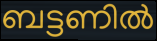
ബട്ടണിൽ